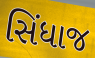
સિંધાજ